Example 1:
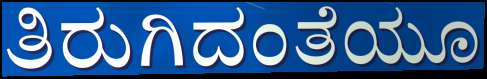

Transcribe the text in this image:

ತಿರುಗಿದಂತೆಯೂ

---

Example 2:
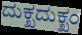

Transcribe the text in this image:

ದುಕ್ಖದುಕ್ಖಂ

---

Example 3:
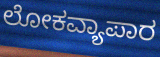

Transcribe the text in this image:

ಲೋಕವ್ಯಾಪಾರ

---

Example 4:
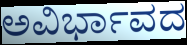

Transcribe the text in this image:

ಅವಿರ್ಭಾವದ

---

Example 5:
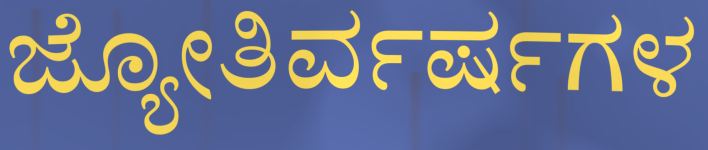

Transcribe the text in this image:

ಜ್ಯೋತಿರ್ವರ್ಷಗಳ